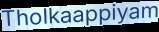
Tholkaappiyam